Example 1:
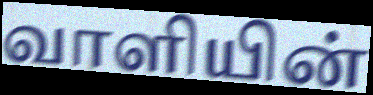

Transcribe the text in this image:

வாளியின்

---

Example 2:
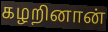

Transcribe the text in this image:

கழறினான்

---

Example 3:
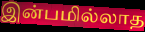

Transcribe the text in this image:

இன்பமில்லாத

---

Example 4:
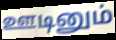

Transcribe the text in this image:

ஊடினும்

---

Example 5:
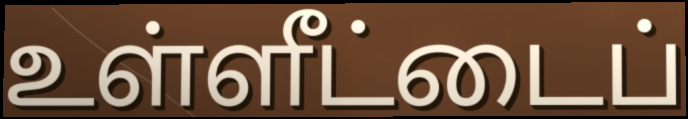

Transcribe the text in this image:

உள்ளீட்டைப்